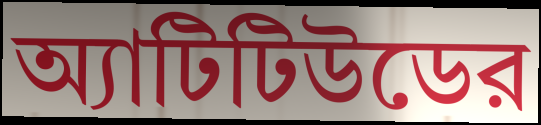
অ্যাটিটিউডের